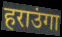
हराउंगा